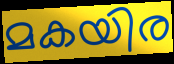
മകയിര